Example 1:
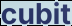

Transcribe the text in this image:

cubit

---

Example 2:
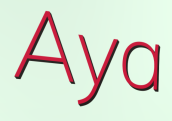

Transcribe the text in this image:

Aya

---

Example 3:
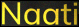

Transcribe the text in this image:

Naati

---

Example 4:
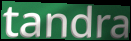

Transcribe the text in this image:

tandra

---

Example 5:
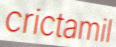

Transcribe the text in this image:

crictamil